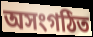
অসংগঠিত